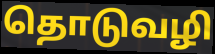
தொடுவழி